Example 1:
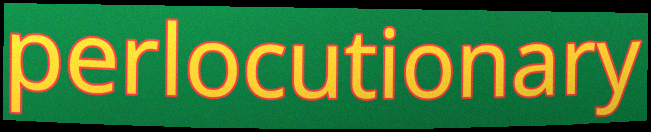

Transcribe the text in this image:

perlocutionary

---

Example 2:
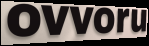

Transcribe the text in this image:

ovvoru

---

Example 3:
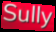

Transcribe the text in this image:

Sully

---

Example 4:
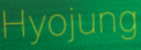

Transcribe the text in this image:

Hyojung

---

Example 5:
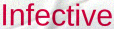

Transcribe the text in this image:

Infective